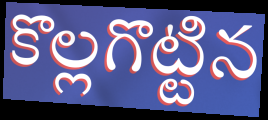
కొల్లగొట్టిన